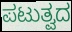
ಪಟುತ್ವದ